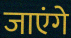
जाएंगे